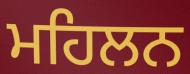
ਮਹਿਲਨ